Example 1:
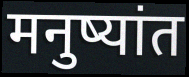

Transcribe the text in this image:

मनुष्यांत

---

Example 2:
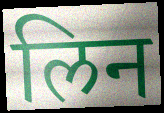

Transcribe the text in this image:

लिन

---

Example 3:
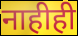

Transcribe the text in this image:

नाहीही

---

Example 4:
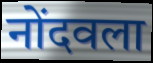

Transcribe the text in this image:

नोंदवला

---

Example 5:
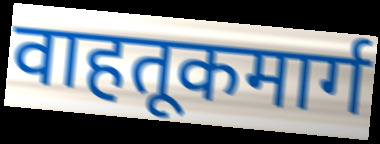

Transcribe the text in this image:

वाहतूकमार्ग